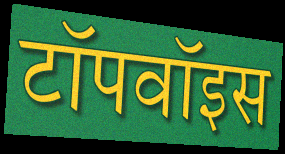
टॉपवॉइस